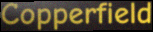
Copperfield